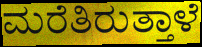
ಮರೆತಿರುತ್ತಾಳೆ